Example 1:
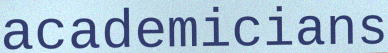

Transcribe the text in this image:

academicians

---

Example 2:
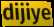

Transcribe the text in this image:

dijiye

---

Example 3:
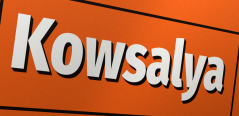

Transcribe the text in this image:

Kowsalya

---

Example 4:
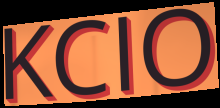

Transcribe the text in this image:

KCIO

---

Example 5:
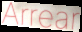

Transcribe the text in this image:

Arrear